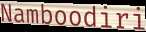
Namboodiri